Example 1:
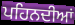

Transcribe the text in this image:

ਪਹਿਨਦੀਆਂ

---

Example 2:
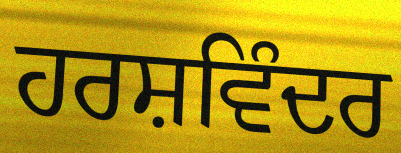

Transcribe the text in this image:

ਹਰਸ਼ਵਿੰਦਰ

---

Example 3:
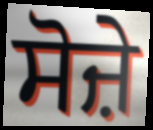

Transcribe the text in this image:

ਸੋਜ਼ੇ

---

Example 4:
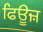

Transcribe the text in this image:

ਫਿਊਜ਼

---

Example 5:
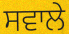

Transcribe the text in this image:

ਸਵਾਲੇ